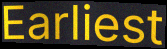
Earliest